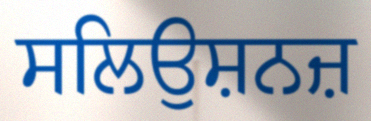
ਸਲਿਉਸ਼ਨਜ਼